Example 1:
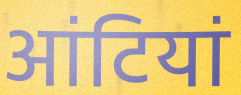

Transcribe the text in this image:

आंटियां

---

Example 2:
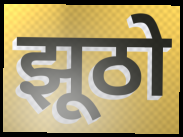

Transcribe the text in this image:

झूठो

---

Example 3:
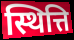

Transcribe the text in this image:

स्थित्ति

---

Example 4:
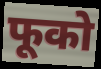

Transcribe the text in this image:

फूको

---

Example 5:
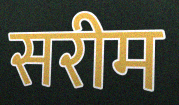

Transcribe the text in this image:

सरीम